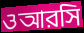
ওআরসি